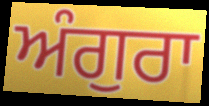
ਅੰਗੁਰਾ